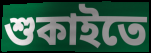
শুকাইতে